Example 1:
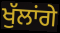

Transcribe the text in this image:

ਖੁੱਲਾਂਗੇ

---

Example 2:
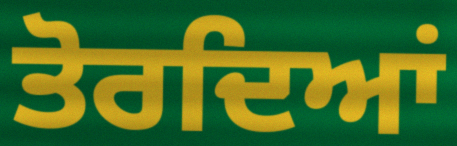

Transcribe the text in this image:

ਤੋਰਦਿਆਂ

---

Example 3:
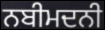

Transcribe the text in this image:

ਨਬੀਮਦਨੀ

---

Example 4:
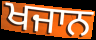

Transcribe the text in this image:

ਖਜਾਨ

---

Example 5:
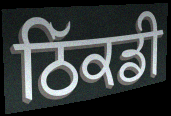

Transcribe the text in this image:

ਠਿੱਕਡੀ